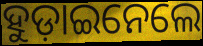
ହୁଡ଼ାଇନେଲେ